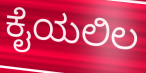
ಕೈಯಲಿಲ